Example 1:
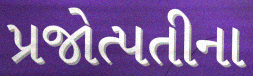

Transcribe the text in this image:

પ્રજોત્પતીના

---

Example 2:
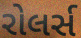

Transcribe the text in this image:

રોલર્સ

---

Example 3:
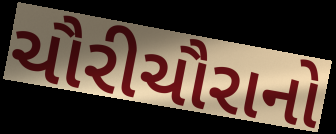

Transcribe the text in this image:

ચૌરીચૌરાનો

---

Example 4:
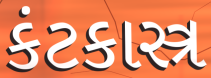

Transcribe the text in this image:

કંટકાસ્ત્ર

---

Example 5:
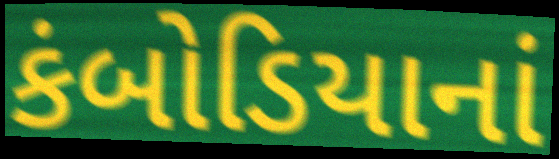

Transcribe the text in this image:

કંબોડિયાનાં